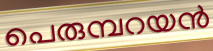
പെരുമ്പറയൻ